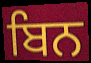
ਬਿਨ